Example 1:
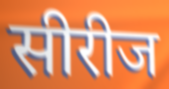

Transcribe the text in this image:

सीरीज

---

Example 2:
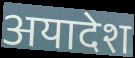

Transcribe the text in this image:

अयादेश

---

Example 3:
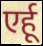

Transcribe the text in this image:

एर्हू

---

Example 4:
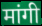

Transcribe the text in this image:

मांगी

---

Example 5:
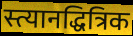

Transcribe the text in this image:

स्त्यानद्धित्रिक